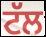
ਟੱਲ